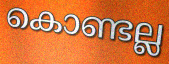
കൊണ്ടല്ല